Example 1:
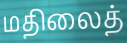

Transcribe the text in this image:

மதிலைத்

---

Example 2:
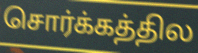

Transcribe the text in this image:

சொர்க்கத்தில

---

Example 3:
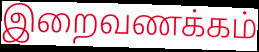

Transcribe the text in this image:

இறைவணக்கம்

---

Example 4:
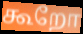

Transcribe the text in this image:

கூறோ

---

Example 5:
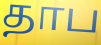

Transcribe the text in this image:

தாப